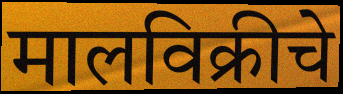
मालविक्रीचे